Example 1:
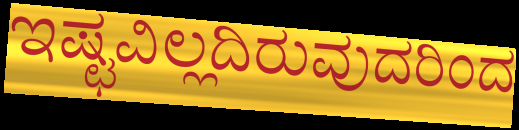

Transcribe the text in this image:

ಇಷ್ಟವಿಲ್ಲದಿರುವುದರಿಂದ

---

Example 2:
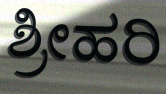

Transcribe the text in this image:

ಶ್ರೀಹರಿ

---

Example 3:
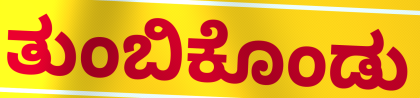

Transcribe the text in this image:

ತುಂಬಿಕೊಂಡು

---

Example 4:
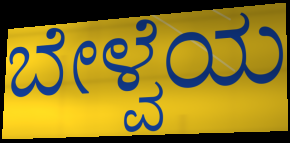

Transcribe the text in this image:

ಬೇಳ್ವೆಯ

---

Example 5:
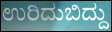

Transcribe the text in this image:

ಉರಿದುಬಿದ್ದು